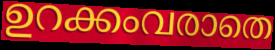
ഉറക്കംവരാതെ